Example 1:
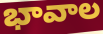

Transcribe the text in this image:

భావాల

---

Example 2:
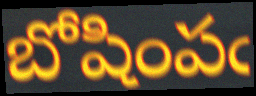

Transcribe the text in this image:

బోషింపఁ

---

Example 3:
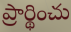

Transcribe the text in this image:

ప్రార్థించు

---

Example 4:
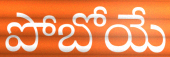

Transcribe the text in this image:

పోబోయే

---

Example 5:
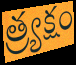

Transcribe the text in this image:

త్ర్యక్షం